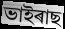
ভাইৰাছ